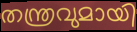
തന്ത്രവുമായി